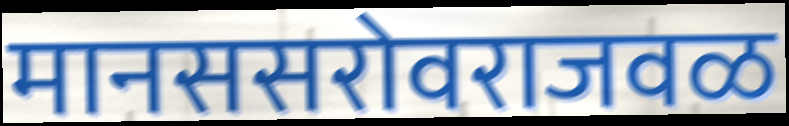
मानससरोवराजवळ